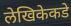
लेखिकेकडे